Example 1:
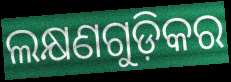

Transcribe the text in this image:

ଲକ୍ଷଣଗୁଡ଼ିକର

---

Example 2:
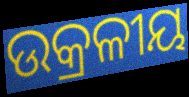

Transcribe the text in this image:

ଉକ୍ରଳୀୟ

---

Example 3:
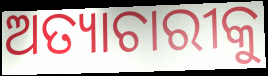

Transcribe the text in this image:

ଅତ୍ୟାଚାରୀକୁ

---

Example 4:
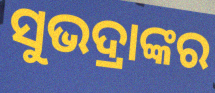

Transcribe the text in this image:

ସୁଭଦ୍ରାଙ୍କର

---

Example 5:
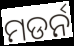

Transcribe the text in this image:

ମଡର୍ନ